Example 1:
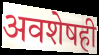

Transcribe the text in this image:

अवशेषही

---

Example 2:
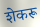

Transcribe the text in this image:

शेकरू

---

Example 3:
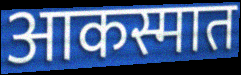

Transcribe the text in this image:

आकस्मात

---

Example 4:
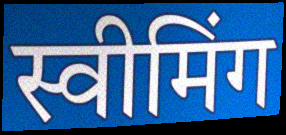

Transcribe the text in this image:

स्वीमिंग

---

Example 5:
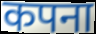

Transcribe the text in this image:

कपना